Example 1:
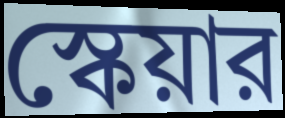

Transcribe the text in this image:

স্কেয়ার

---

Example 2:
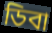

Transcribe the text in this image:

ডিবা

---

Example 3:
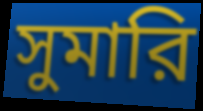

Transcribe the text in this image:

সুমারি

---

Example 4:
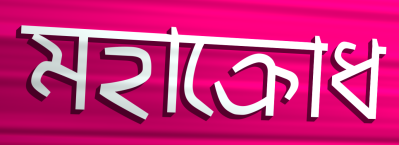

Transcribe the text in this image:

মহাক্রোধ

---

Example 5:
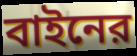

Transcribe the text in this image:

বাইনের